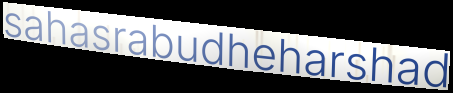
sahasrabudheharshad